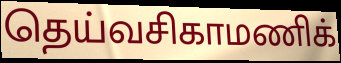
தெய்வசிகாமணிக்